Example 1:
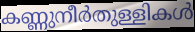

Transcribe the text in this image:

കണ്ണുനീർതുള്ളികൾ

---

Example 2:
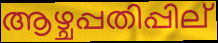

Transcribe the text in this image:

ആഴ്ചപ്പതിപ്പില്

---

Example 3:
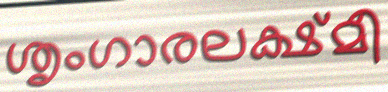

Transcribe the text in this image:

ശൃംഗാരലക്ഷ്മീ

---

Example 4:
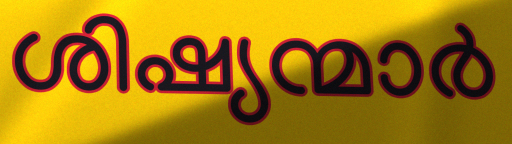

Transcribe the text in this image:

ശിഷ്യന്മാർ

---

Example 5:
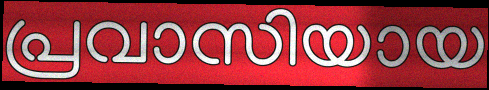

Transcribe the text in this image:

പ്രവാസിയായ